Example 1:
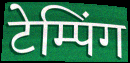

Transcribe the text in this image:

टेम्पिंग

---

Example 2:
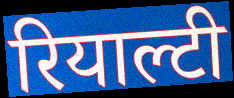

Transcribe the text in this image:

रियाल्टी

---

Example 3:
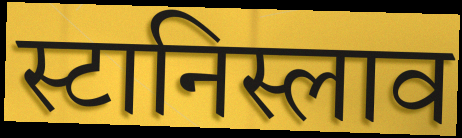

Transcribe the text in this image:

स्टानिस्लाव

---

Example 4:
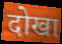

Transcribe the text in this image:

दोखा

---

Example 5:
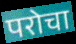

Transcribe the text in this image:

परोचा